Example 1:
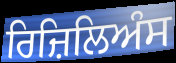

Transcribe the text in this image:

ਰਿਜ਼ਿਲਿਅੰਸ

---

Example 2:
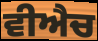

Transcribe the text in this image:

ਵੀਐਚ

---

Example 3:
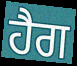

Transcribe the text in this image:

ਹੈਗ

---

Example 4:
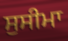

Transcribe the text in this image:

ਸੁਸੀਮਾ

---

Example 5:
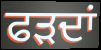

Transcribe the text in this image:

ਫੜਦਾਂ